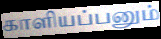
காளியப்பனும்